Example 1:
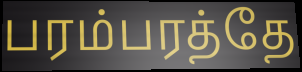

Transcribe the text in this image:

பரம்பரத்தே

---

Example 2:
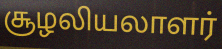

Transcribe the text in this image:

சூழலியலாளர்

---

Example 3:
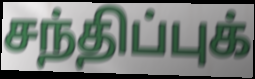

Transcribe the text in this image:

சந்திப்புக்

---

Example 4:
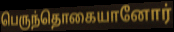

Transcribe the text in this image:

பெருந்தொகையானோர்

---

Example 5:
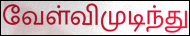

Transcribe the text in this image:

வேள்விமுடிந்து